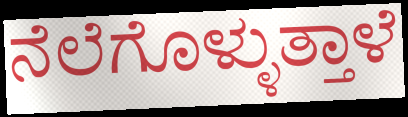
ನೆಲೆಗೊಳ್ಳುತ್ತಾಳೆ